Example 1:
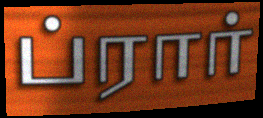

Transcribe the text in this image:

ப்ரார்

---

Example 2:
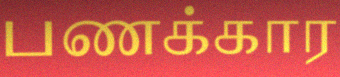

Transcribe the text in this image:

பணக்கார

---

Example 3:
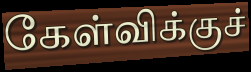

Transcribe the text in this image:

கேள்விக்குச்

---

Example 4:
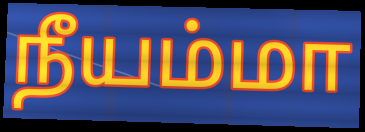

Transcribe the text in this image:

நீயம்மா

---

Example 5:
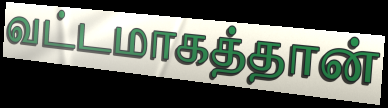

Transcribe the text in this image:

வட்டமாகத்தான்